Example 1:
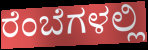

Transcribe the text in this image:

ರೆಂಬೆಗಳಲ್ಲಿ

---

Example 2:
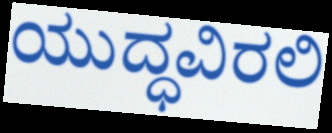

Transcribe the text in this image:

ಯುದ್ಧವಿರಲಿ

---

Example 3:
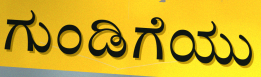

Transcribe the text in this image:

ಗುಂಡಿಗೆಯು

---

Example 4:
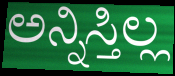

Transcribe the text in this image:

ಅನ್ನಿಸ್ತಿಲ್ಲ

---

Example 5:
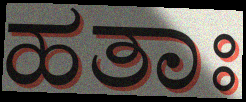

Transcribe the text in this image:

ಹತಾಃ